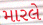
મારલે